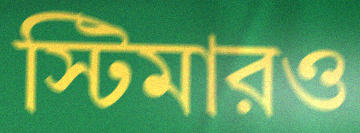
স্টিমারও